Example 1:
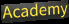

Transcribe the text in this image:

Academy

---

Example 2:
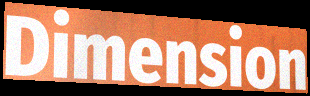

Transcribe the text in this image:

Dimension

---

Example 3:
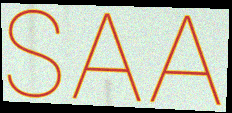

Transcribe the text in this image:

SAA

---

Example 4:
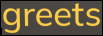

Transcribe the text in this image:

greets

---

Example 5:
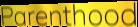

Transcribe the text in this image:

Parenthood